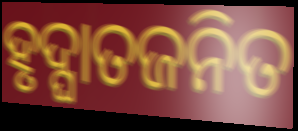
ହୃଦ୍ଘାତଜନିତ